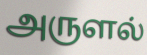
அருளல்